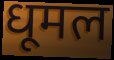
धूमल